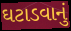
ઘટાડવાનું